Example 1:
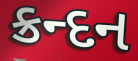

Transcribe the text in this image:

ક્રન્દન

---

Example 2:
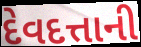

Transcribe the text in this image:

દેવદત્તાની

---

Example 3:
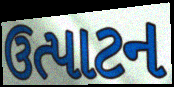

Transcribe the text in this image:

ઉત્પાટન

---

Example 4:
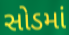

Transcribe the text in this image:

સોડમાં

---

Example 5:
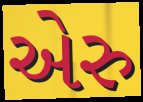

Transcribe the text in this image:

એરુ